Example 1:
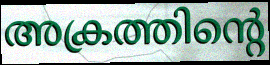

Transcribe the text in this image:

അക്രത്തിന്റെ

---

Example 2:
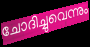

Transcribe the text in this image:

ചോദിച്ചുവെന്നും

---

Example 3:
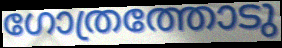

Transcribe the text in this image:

ഗോത്രത്തോടു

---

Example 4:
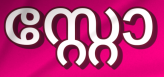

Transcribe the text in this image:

സ്റ്റോ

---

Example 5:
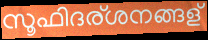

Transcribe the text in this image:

സൂഫിദര്ശനങ്ങള്